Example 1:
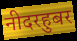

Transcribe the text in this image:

नीदरहुबर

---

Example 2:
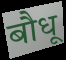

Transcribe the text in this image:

बौधू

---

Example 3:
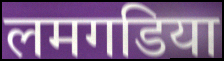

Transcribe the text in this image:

लमगडिया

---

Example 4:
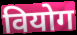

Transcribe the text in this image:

वियोग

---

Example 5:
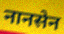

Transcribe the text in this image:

नानसेन